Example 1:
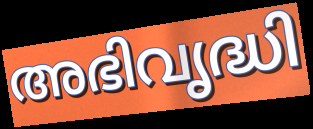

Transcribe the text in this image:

അഭിവൃദ്ധി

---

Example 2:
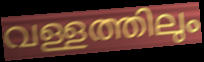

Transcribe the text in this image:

വള്ളത്തിലും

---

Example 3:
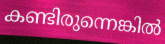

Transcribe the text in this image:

കണ്ടിരുന്നെങ്കിൽ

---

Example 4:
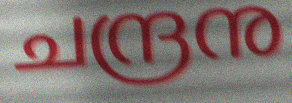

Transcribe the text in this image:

ചന്ദ്രനു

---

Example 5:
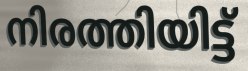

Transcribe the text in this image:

നിരത്തിയിട്ട്